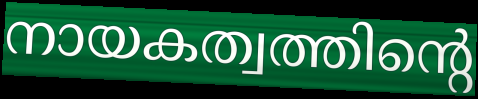
നായകത്വത്തിന്റെ